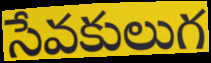
సేవకులుగ